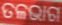
ତଳଭାଗ